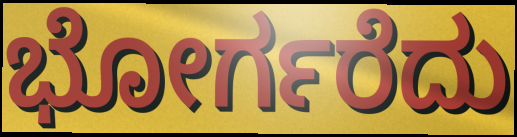
ಭೋರ್ಗರೆದು